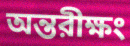
অন্তরীক্ষং